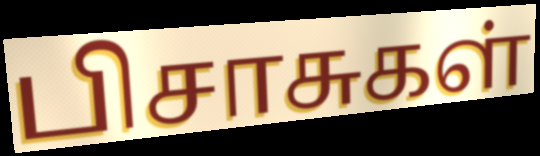
பிசாசுகள்